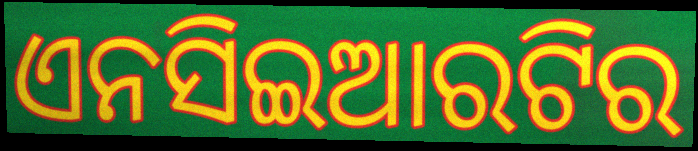
ଏନସିଇଆରଟିର